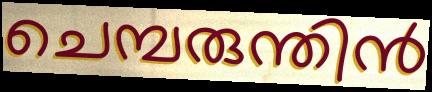
ചെമ്പരുന്തിൻ